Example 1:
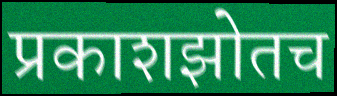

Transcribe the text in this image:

प्रकाशझोतच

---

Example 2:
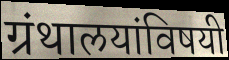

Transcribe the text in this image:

ग्रंथालयांविषयी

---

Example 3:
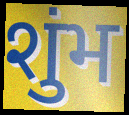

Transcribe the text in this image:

शुंभ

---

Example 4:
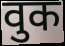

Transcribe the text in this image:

वुक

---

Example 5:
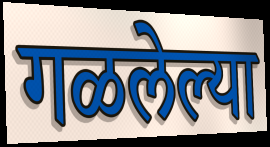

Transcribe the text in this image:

गळलेल्या